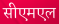
सीएमएल